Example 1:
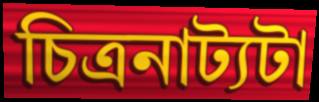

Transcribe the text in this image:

চিত্রনাট্যটা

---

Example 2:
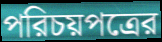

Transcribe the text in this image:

পরিচয়পত্রের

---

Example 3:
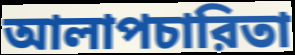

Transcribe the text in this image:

আলাপচারিতা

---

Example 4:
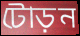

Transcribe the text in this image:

টোড়ন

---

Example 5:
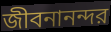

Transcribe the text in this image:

জীবনানন্দর